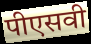
पीएसवी